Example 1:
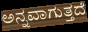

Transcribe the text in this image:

ಅನ್ನವಾಗುತ್ತದೆ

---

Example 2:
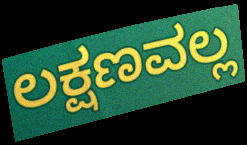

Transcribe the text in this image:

ಲಕ್ಷಣವಲ್ಲ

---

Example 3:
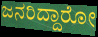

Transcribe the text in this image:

ಜನರಿದ್ದಾರೋ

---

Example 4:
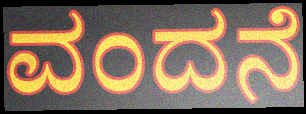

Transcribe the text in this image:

ವಂದನೆ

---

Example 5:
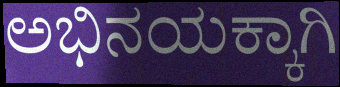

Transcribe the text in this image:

ಅಭಿನಯಕ್ಕಾಗಿ